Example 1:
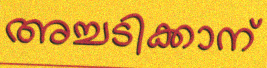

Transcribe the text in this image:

അച്ചടിക്കാന്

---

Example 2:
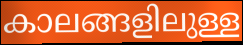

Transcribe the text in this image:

കാലങ്ങളിലുള്ള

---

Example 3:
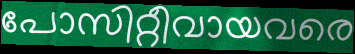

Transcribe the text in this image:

പോസിറ്റീവായവരെ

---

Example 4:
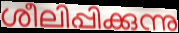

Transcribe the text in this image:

ശീലിപ്പിക്കുന്നു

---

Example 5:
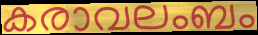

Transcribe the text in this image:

കരാവലംബം